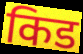
किड